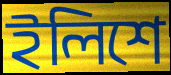
ইলিশে